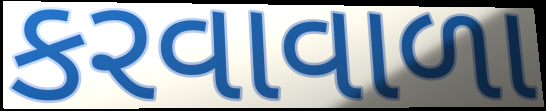
કરવાવાળા